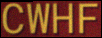
CWHF